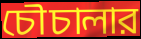
চৌচালার